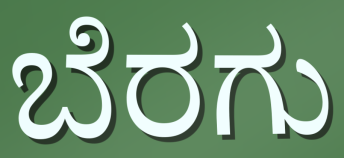
ಬೆರಗು